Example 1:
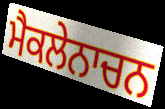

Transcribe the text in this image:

ਮੈਕਲੇਨਾਚਨ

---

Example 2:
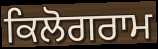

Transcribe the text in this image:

ਕਿਲੋਗਰਾਮ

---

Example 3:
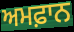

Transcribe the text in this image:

ਅਮਫ਼ਾਨ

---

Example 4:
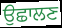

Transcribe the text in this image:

ਉਛਾਲਣ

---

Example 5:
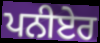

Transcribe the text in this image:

ਪਨੀਏਰ